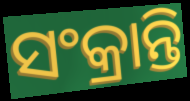
ସଂକ୍ରାନ୍ତି